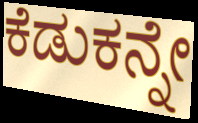
ಕೆಡುಕನ್ನೇ